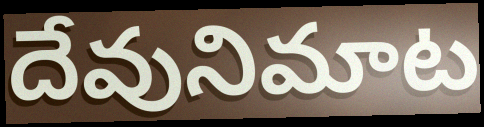
దేవునిమాట